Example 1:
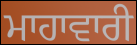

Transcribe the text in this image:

ਮਾਹਾਵਾਰੀ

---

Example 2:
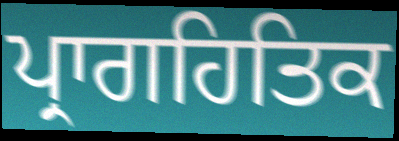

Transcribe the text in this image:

ਪ੍ਰਾਗਹਿਤਿਕ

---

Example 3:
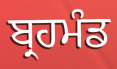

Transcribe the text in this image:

ਬ੍ਰਹਮੰਡ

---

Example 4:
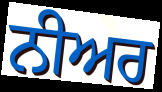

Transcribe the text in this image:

ਨੀਅਰ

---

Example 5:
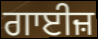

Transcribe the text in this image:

ਗਾਈਜ਼